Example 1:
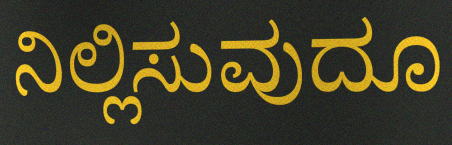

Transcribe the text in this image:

ನಿಲ್ಲಿಸುವುದೂ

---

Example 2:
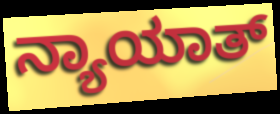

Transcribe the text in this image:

ನ್ಯಾಯಾತ್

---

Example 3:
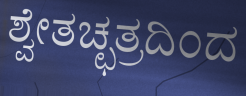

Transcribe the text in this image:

ಶ್ವೇತಚ್ಛತ್ರದಿಂದ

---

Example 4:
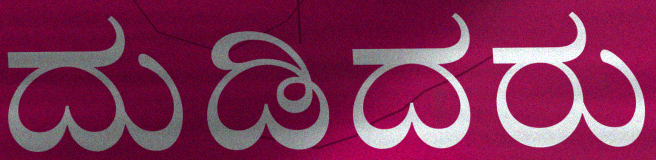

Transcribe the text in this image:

ದುಡಿದರು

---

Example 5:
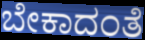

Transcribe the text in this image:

ಬೇಕಾದಂತೆ